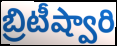
బ్రిటీష్వారి